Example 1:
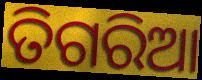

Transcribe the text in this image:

ତିଗରିଆ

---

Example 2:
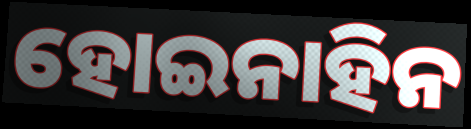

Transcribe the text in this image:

ହୋଇନାହିନ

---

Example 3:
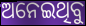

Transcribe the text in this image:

ଅନେଇଥିବୁ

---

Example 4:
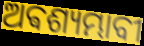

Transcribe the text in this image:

ଅଵଶ୍ୟମ୍ଭାବୀ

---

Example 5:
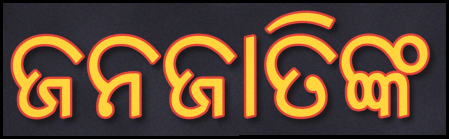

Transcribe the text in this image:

ଜନଜାତିଙ୍କ